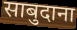
साबुदाना